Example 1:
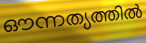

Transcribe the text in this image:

ഔന്നത്യത്തിൽ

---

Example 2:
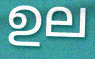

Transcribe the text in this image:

ഉല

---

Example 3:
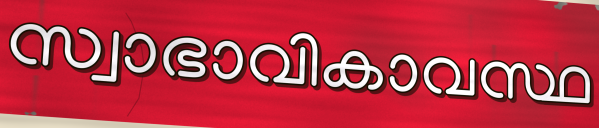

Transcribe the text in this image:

സ്വാഭാവികാവസ്ഥ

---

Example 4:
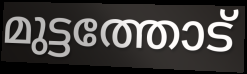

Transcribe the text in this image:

മുട്ടത്തോട്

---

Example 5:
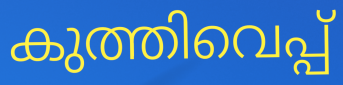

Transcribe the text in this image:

കുത്തിവെപ്പ്